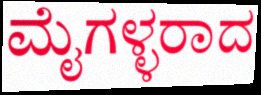
ಮೈಗಳ್ಳರಾದ